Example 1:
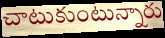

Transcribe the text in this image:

చాటుకుంటున్నారు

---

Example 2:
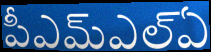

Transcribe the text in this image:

పీఎమ్ఎల్ఏ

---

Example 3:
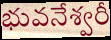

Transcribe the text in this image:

భువనేశ్వరీ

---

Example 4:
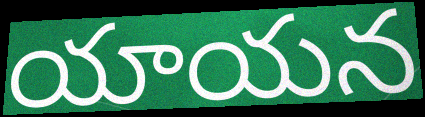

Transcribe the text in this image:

యాయన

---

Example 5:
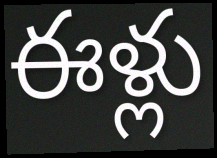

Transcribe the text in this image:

ఈళ్లు